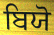
ਬਿਯੋ